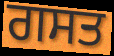
ਗਸਤ